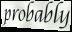
probably